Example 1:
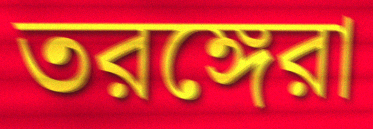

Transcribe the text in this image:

তরঙ্গেরা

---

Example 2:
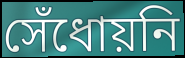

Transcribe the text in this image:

সেঁধোয়নি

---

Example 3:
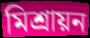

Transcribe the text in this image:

মিশ্রায়ন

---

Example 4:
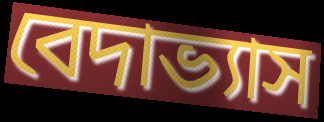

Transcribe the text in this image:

বেদাভ্যাস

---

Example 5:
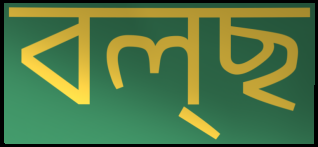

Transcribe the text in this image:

বল্‌ছ